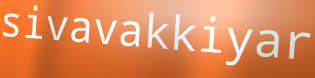
sivavakkiyar